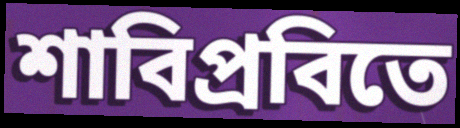
শাবিপ্রবিতে